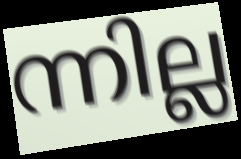
ന്നില്ല